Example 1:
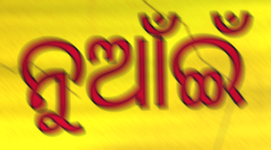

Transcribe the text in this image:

ନୁଆଁଇଁ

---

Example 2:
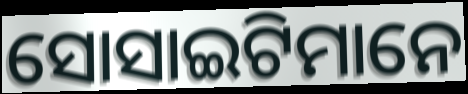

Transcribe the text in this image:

ସୋସାଇଟିମାନେ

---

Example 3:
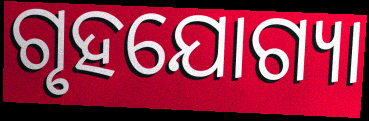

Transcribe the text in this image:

ଗୃହଯୋଗ୍ୟା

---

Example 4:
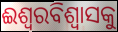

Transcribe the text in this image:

ଈଶ୍ୱରବିଶ୍ଵାସକୁ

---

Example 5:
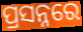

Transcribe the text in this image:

ପ୍ରସନ୍ନରେ